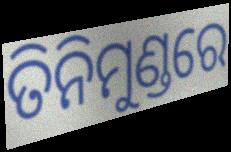
ତିନିମୁଣ୍ଡରେ